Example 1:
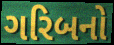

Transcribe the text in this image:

ગરિબનો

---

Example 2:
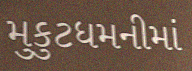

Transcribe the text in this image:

મુકુટધમનીમાં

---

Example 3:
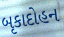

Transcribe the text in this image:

બૃકાદોહન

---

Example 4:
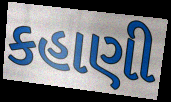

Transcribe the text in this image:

કહાણી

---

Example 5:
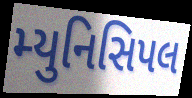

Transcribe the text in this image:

મ્યુનિસિપલ